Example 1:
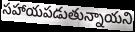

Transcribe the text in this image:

సహాయపడుతున్నాయని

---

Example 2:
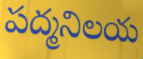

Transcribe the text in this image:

పద్మనిలయ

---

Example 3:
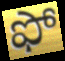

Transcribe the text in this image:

ఫో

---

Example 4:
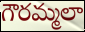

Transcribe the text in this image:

గౌరమ్మలా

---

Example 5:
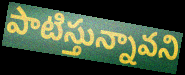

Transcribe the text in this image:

పాటిస్తున్నావని